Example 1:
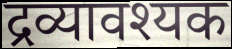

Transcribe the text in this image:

द्रव्यावश्यक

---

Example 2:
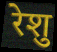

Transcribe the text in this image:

रेशु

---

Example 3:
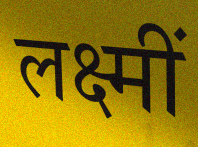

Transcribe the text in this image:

लक्ष्मीं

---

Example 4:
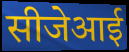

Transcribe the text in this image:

सीजेआई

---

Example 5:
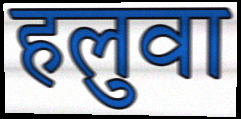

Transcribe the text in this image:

हलुवा